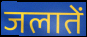
जलातें